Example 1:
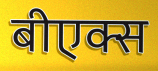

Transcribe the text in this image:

बीएक्स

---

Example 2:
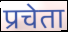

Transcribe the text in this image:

प्रचेता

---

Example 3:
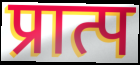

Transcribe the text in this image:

प्रात्प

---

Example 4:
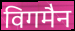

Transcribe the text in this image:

विगमैन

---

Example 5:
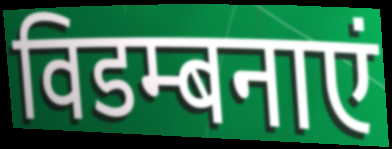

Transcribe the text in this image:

विडम्बनाएं